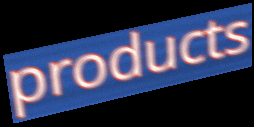
products